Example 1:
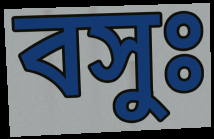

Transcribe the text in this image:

বসুঃ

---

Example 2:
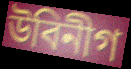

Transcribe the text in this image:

উবিনীগ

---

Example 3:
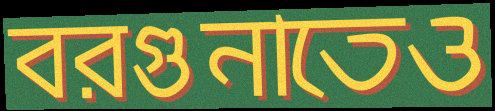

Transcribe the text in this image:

বরগুনাতেও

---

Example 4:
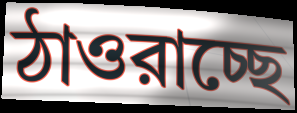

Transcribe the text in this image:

ঠাওরাচ্ছে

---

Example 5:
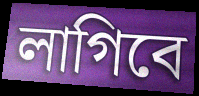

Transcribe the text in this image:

লাগিবে